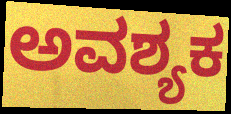
ಅವಶ್ಯಕ